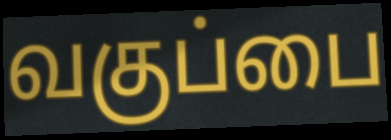
வகுப்பை